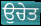
ਉਚੇਤ